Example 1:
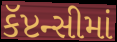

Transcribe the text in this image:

કૅપ્ટન્સીમાં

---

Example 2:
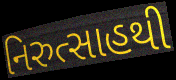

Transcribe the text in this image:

નિરુત્સાહથી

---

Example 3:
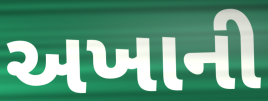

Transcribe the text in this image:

અખાની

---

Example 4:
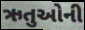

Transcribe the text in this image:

ઋતુઓની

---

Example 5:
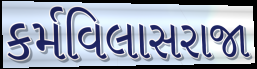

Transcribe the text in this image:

કર્મવિલાસરાજા